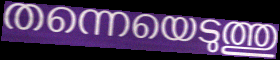
തന്നെയെടുത്തു